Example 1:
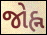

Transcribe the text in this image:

જોહ્ન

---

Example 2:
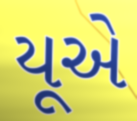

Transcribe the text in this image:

યૂએ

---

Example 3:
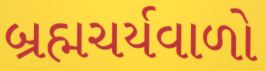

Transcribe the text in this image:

બ્રહ્મચર્યવાળો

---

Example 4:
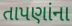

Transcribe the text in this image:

તાપણાંના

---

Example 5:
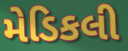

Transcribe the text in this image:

મેડિકલી